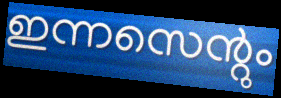
ഇന്നസെന്റും